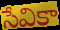
సేవికా